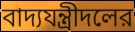
বাদ্যযন্ত্রীদলের